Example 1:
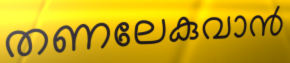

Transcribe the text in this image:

തണലേകുവാൻ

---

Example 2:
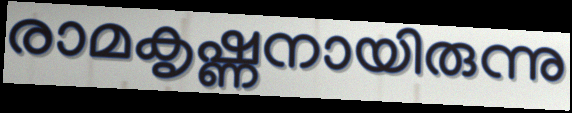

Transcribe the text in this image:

രാമകൃഷ്ണനായിരുന്നു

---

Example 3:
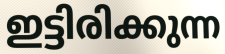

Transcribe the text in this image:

ഇട്ടിരിക്കുന്ന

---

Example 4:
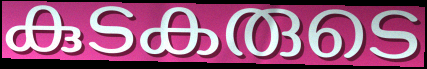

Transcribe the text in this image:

കുടകരുടെ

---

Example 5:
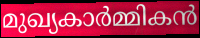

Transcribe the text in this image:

മുഖ്യകാർമ്മികൻ